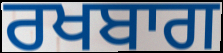
ਰਖਬਾਗ